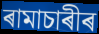
ৰামাচাৰীৰ